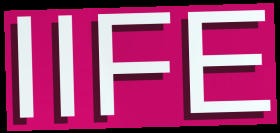
IIFE